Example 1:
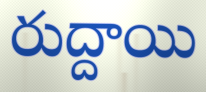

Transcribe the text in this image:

రుద్దాయి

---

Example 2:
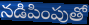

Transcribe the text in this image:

నడిపింపుతో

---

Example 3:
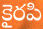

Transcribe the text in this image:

కైరపి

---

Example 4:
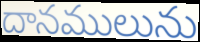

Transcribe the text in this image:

దానములును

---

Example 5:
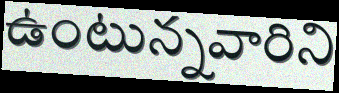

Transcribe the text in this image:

ఉంటున్నవారిని